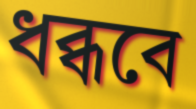
ধব্ধবে